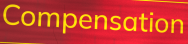
Compensation